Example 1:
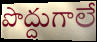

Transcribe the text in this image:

పొద్దుగాలే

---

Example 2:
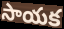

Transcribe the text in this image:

సాయక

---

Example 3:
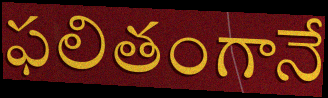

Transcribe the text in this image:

ఫలితంగానే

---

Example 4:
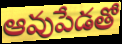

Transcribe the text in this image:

ఆవుపేడతో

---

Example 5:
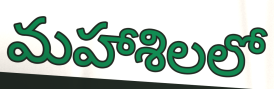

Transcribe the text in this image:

మహాశిలలో